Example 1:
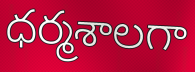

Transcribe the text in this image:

ధర్మశాలగా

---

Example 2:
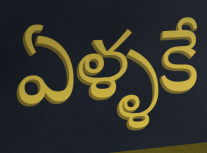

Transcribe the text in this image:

ఏళ్ళకే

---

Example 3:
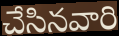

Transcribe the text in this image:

చేసినవారి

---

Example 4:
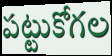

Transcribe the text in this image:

పట్టుకోగల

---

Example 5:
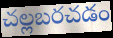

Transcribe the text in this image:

చల్లబరచడం